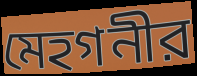
মেহগনীর